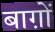
बाग़ों